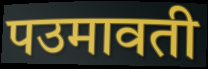
पउमावती